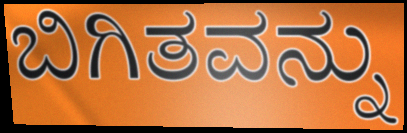
ಬಿಗಿತವನ್ನು